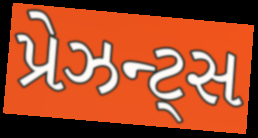
પ્રેઝન્ટ્સ